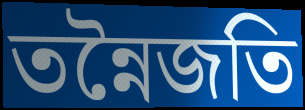
তন্নৈজতি